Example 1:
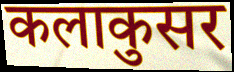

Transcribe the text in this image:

कलाकुसर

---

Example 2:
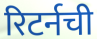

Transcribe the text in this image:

रिटर्नची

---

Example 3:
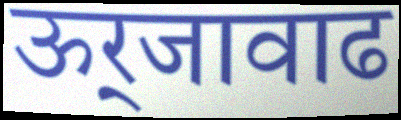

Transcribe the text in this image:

ऊर्जावाढ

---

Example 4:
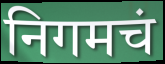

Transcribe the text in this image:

निगमचं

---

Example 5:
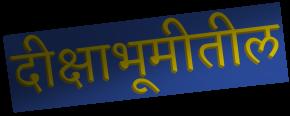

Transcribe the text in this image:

दीक्षाभूमीतील